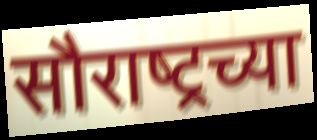
सौराष्ट्रच्या